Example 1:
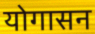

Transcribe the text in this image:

योगासन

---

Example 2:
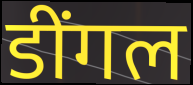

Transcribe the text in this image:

डींगल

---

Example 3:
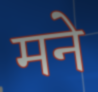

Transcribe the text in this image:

मने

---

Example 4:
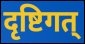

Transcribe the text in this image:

दृष्टिगत्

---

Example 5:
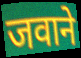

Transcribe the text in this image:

जवाने